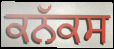
ਕਨੱਕਸ